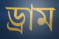
ড্ৰাম